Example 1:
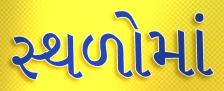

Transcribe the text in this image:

સ્‍થળોમાં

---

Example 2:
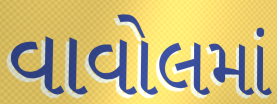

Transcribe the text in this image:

વાવોલમાં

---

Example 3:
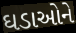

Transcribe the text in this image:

ઘડાઓને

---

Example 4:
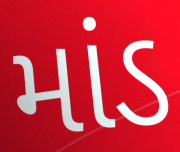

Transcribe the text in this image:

માંડ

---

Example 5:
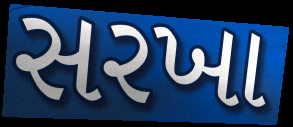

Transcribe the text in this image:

સરખા